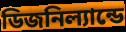
ডিজনিল্যান্ডে